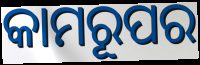
କାମରୂପର